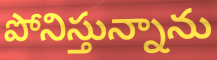
పోనిస్తున్నాను